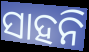
ସାହନି